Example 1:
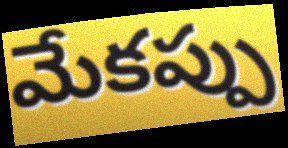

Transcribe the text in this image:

మేకప్పు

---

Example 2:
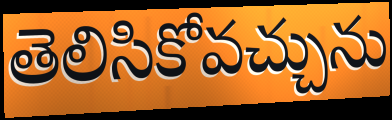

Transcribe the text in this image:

తెలిసికోవచ్చును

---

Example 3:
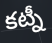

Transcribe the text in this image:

కట్నీ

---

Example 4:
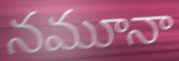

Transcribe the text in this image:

నమూనా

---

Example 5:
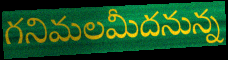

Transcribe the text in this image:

గనిమలమీదనున్న